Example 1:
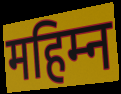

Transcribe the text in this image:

महिम्न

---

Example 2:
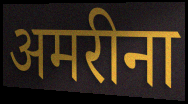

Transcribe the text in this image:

अमरीना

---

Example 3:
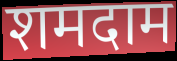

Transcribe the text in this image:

शमदाम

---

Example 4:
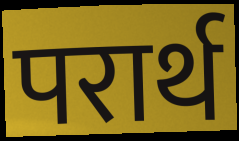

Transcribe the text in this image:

परार्थ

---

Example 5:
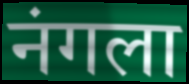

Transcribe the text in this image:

नंगला